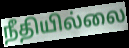
நீதியில்லை